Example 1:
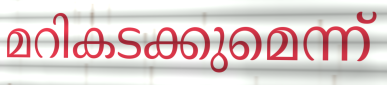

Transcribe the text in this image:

മറികടക്കുമെന്ന്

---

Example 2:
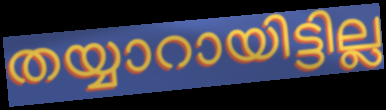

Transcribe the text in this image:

തയ്യാറായിട്ടില്ല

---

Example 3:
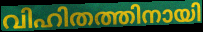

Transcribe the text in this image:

വിഹിതത്തിനായി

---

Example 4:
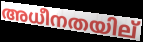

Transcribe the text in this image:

അധീനതയില്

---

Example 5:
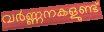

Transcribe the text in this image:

വർണ്ണനകളുണ്ട്